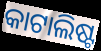
କାଟାଲିଷ୍ଟ